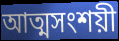
আত্মসংশয়ী